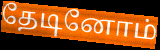
தேடினோம்